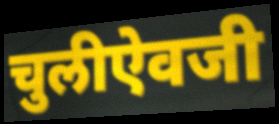
चुलीऐवजी